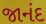
જાનંદ